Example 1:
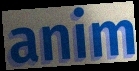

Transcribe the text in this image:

anim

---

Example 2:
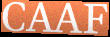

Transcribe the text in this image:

CAAF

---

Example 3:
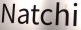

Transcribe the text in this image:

Natchi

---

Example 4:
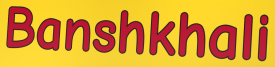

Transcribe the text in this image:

Banshkhali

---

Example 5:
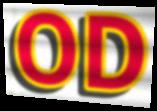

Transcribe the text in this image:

OD